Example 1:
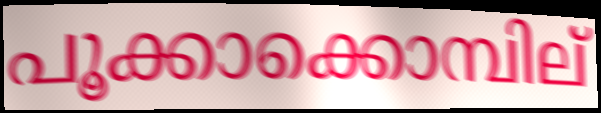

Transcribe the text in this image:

പൂക്കാക്കൊമ്പില്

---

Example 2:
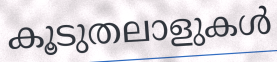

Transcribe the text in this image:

കൂടുതലാളുകൾ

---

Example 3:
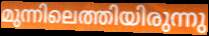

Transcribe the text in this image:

മുന്നിലെത്തിയിരുന്നു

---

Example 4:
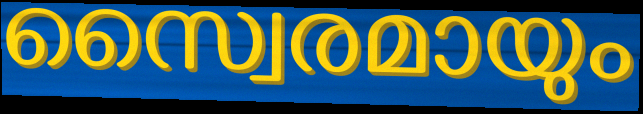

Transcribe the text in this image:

സ്വൈരമായും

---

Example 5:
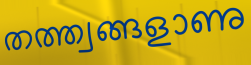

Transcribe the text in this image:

തത്ത്വങ്ങളാണു